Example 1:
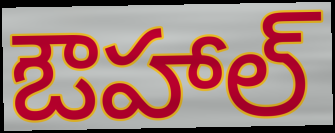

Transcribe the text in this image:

ఔహాల్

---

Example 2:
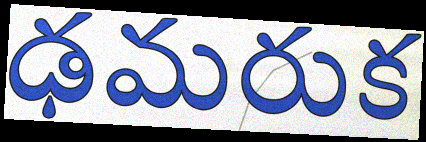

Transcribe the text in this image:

ఢమరుక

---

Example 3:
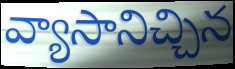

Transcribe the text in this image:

వ్యాసానిచ్చిన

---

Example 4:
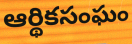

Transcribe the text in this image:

ఆర్థికసంఘం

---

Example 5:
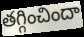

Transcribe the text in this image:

తగ్గించిందా